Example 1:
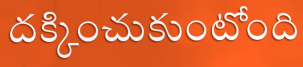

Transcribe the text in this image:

దక్కించుకుంటోంది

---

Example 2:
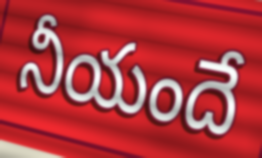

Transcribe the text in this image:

నీయందే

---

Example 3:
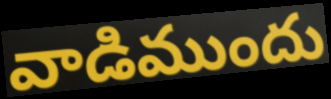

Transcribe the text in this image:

వాడిముందు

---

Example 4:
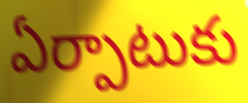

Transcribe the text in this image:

ఏర్పాటుకు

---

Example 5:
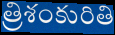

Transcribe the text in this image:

త్రిశంకురితి